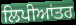
ਲਿਪੀਆਂਤਰ